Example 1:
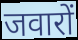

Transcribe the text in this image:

जवारों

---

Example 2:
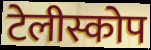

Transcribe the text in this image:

टेलीस्‍कोप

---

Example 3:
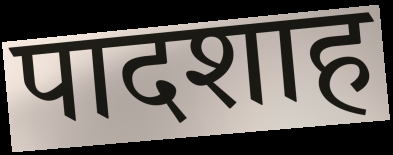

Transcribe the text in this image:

पादशाह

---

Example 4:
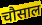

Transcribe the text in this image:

चौसाल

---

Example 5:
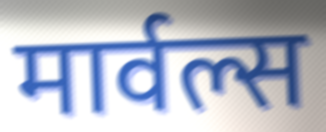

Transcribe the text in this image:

मार्वल्स